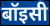
बॉइसी